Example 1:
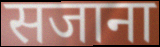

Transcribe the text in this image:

सजाना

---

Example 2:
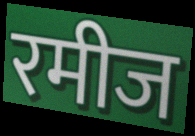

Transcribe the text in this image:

रमीज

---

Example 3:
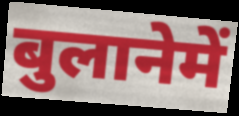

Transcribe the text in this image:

बुलानेमें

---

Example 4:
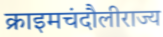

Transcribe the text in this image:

क्राइमचंदौलीराज्य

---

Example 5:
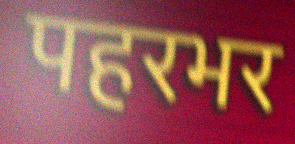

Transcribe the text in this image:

पहरभर